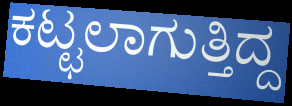
ಕಟ್ಟಲಾಗುತ್ತಿದ್ದ